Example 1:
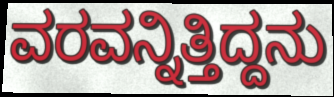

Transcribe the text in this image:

ವರವನ್ನಿತ್ತಿದ್ದನು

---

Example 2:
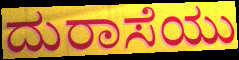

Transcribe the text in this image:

ದುರಾಸೆಯು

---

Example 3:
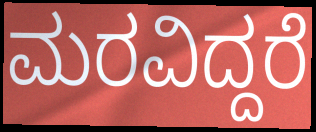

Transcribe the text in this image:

ಮರವಿದ್ದರೆ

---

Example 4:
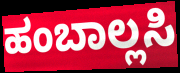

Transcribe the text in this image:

ಹಂಬಾಲ್ಲಸಿ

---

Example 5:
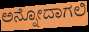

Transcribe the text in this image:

ಅನ್ನೋದಾಗಲಿ